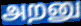
அறனு